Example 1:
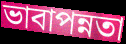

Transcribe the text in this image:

ভাবাপন্নতা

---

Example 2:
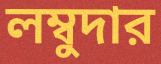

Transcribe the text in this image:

লম্বুদার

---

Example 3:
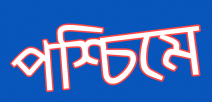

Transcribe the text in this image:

পশ্চিমে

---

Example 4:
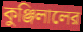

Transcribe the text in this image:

কুঞ্জিলালের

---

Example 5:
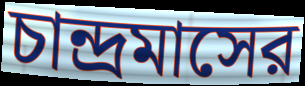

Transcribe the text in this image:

চান্দ্রমাসের